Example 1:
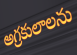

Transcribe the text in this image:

అగ్రకులాలను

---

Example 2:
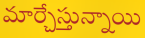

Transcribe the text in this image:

మార్చేస్తున్నాయి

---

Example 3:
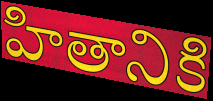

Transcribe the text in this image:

హితానికి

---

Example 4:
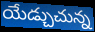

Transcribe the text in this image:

యేడ్చుచున్న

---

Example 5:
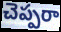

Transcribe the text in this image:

చెప్పరా